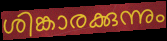
ശിങ്കാരക്കുന്നും